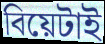
বিয়েটাই